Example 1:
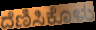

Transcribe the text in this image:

ದೆಣಿಸಿಕೊಳು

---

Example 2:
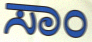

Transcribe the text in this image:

ಸಾಂ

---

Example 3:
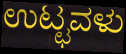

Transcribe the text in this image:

ಉಟ್ಟವಳು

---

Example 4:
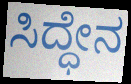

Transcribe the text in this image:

ಸಿದ್ಧೇನ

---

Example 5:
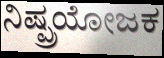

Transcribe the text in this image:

ನಿಷ್ಪ್ರಯೋಜಕ